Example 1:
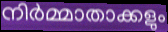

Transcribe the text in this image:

നിർമ്മാതാക്കളും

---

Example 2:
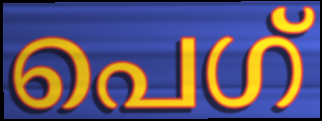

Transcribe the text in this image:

പെഗ്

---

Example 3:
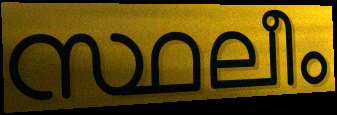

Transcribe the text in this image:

സ്ഥലീം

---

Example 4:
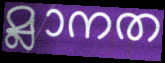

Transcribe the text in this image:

മ്ലാനത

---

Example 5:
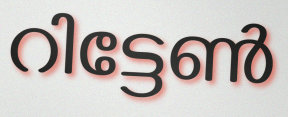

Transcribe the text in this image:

റിട്ടേൺ